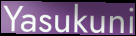
Yasukuni